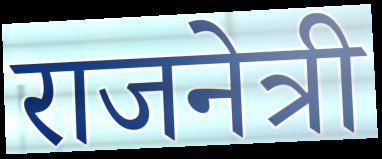
राजनेत्री